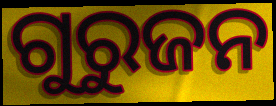
ଗୁରୁଜନ